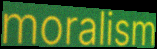
moralism